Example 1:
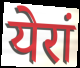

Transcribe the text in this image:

येरां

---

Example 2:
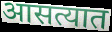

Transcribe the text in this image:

आसत्यात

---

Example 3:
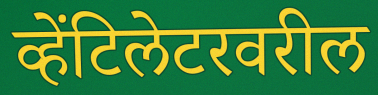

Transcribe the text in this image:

व्हेंटिलेटरवरील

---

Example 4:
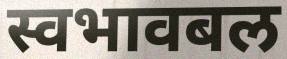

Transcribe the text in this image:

स्वभावबल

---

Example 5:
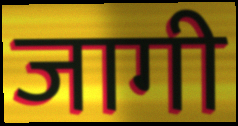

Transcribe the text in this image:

जागी